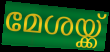
മേശയ്ക്ക്